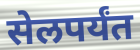
सेलपर्यंत